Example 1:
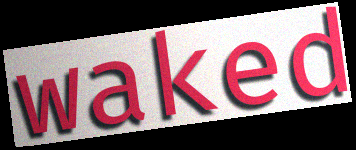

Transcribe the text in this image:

waked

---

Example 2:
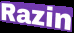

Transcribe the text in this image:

Razin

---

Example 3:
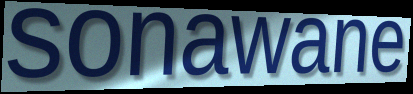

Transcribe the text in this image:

sonawane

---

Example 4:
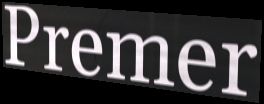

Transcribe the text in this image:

Premer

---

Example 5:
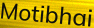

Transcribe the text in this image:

Motibhai